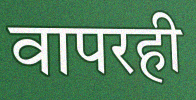
वापरही